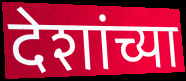
देशांच्या